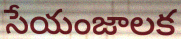
సేయంజాలక